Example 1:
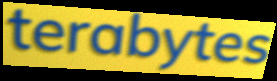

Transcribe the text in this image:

terabytes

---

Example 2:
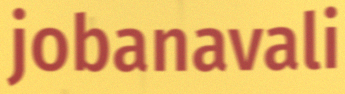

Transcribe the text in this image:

jobanavali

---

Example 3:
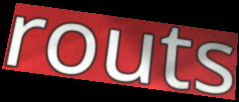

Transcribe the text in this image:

routs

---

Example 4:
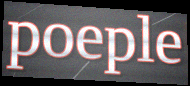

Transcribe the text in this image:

poeple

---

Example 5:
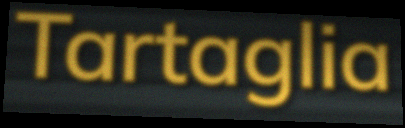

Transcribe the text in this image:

Tartaglia